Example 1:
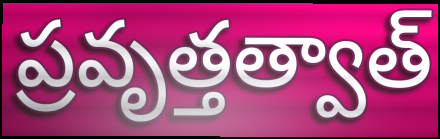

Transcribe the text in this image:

ప్రవృత్తత్వాత్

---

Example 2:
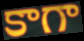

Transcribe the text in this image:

కాగా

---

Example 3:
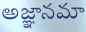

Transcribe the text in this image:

అజ్ఞానమా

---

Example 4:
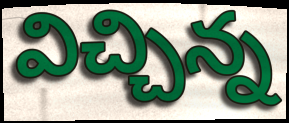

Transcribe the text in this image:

విచ్చిన్న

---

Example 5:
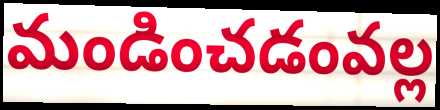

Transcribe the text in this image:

మండించడంవల్ల